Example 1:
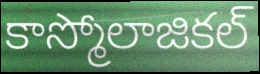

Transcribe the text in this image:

కాస్మోలాజికల్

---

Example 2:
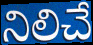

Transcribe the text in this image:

నిలిచే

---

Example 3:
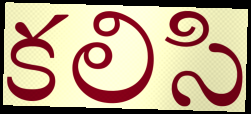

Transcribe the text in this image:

కలిసి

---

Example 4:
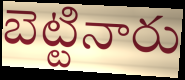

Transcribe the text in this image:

బెట్టినారు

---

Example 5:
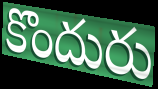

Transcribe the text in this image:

కొందురు